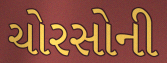
ચોરસોની